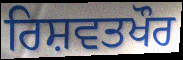
ਰਿਸ਼ਵਤਖੌਰ